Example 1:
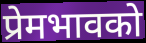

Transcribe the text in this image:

प्रेमभावको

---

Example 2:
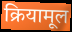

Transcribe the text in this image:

क्रियामूल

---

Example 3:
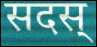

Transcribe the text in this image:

सदस्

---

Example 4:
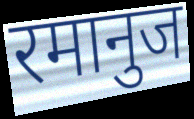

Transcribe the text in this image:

रमानुज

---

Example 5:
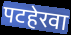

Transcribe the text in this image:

पटहेरवा